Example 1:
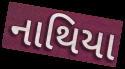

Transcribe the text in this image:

નાથિયા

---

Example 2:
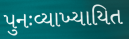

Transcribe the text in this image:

પુનઃવ્યાખ્યાયિત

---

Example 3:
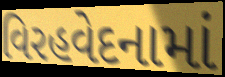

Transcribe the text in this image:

વિરહવેદનામાં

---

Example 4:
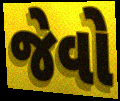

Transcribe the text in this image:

જેવો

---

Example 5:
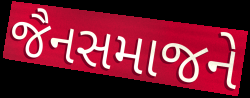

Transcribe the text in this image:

જૈનસમાજને